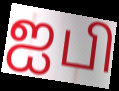
ஐபி